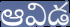
ఆవిడ